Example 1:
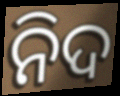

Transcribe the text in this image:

ନିଦ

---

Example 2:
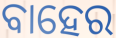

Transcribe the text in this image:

ବାହେର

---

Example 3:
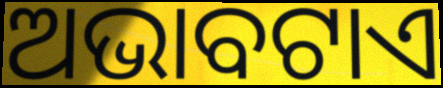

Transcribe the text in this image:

ଅଭାବଟାଏ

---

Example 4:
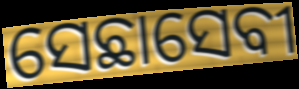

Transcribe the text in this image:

ସେଛାସେବୀ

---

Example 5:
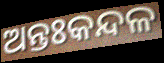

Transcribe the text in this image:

ଅନ୍ତଃକନ୍ଦଳ